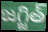
జగ్జిత్